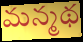
మన్మథ